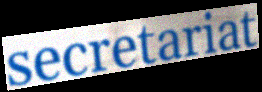
secretariat